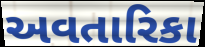
અવતારિકા